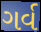
ગર્વ